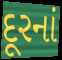
દૂરનાં